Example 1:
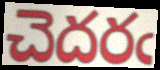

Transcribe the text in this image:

చెదరఁ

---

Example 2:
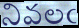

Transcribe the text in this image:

నివలఁ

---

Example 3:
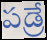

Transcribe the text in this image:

పడ్రే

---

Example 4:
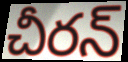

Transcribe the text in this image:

చీరన్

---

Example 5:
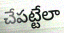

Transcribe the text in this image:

చేపట్టేలా